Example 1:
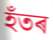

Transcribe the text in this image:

হঁতৰ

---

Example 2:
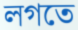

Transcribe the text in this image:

লগতে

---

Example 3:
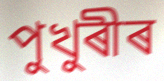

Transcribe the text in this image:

পুখুৰীৰ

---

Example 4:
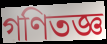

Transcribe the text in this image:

গণিতজ্ঞ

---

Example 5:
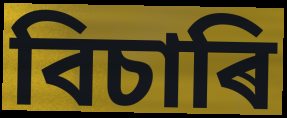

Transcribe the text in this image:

বিচাৰি